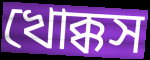
খোক্কস